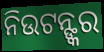
ନିଉଟନ୍ଙ୍କର